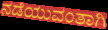
ನಡೆಯುವಂತಾಗಿ